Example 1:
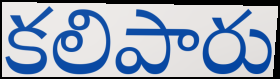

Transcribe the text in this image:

కలిపారు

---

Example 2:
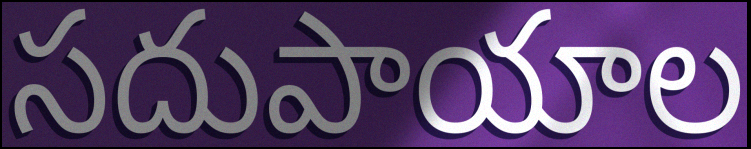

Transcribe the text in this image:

సదుపాయాల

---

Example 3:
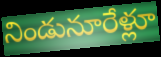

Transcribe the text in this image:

నిండునూరేళ్లూ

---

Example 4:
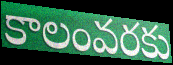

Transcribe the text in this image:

కాలంవరకు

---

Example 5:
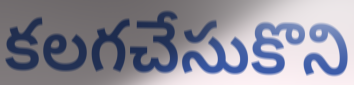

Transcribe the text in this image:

కలగచేసుకొని